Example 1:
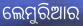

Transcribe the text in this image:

ଲେମୁରିଆର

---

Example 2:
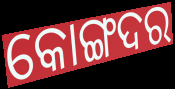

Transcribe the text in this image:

କୋଙ୍ଗଦର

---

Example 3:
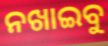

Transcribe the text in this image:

ନଖାଇବୁ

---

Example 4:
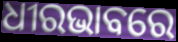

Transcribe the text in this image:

ଧୀରଭାବରେ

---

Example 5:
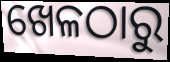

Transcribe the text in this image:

ଖେଳଠାରୁ